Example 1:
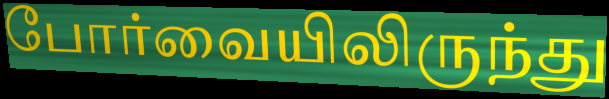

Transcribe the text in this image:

போர்வையிலிருந்து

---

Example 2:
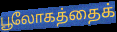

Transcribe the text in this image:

பூலோகத்தைக்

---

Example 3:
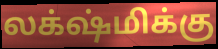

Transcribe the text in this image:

லக்‌ஷ்மிக்கு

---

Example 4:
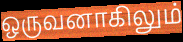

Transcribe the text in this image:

ஒருவனாகிலும்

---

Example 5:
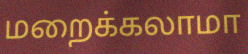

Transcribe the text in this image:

மறைக்கலாமா